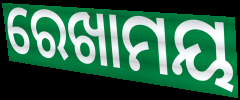
ରେଖାମୟ